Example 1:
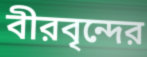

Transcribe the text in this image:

বীরবৃন্দের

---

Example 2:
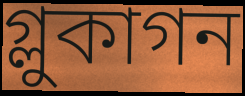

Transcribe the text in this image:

গ্লুকাগন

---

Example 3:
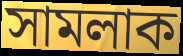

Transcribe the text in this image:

সামলাক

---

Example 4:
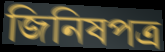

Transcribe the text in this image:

জিনিষপত্র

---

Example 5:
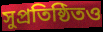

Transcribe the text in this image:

সুপ্রতিষ্ঠিতও